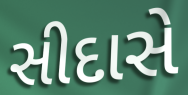
સીદાસે